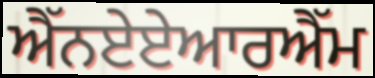
ਐੱਨਏਏਆਰਐੱਮ